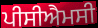
ਪੀਸੀਐਮਸੀ